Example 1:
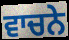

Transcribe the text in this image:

ਵਾਚਨੇ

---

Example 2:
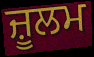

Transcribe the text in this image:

ਜ਼ੂਲਮ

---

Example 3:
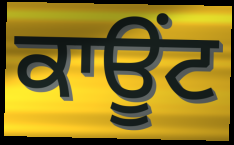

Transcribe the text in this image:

ਕਾਊਂਟ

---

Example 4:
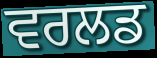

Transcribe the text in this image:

ਵਰਲਡ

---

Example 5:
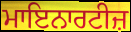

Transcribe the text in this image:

ਮਾਇਨਾਰਟੀਜ਼